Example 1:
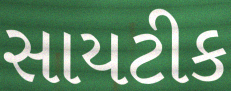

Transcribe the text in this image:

સાયટીક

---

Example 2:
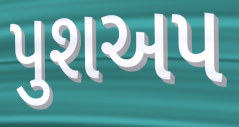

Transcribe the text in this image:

પુશઅપ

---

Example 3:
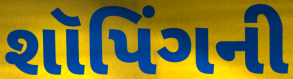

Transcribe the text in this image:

શૉપિંગની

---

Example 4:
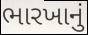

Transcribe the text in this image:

ભારખાનું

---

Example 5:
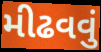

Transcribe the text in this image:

મીઢવવું